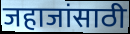
जहाजांसाठी